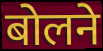
बोलने